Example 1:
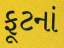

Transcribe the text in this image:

ફૂટનાં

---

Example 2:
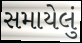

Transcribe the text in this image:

સમાયેલું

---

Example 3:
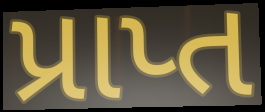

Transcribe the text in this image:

પ્રાપ્ત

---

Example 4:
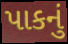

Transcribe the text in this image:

પાકનું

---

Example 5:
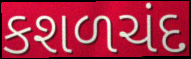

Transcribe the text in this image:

કશળચંદ